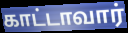
காட்டாவார்